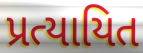
પ્રત્યાયિત